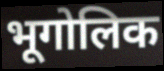
भूगोलिक